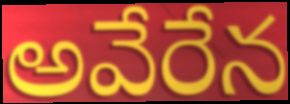
అవేరేన